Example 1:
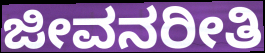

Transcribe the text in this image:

ಜೀವನರೀತಿ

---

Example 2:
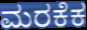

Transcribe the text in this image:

ಮರಕೆಕ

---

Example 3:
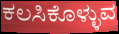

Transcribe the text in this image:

ಕಲಸಿಕೊಳ್ಳುವ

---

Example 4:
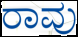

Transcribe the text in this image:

ರಾವು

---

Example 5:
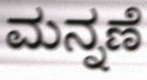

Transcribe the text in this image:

ಮನ್ನಣೆ